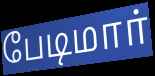
பேடிமார்